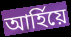
আৰ্হিয়ে